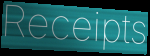
Receipts